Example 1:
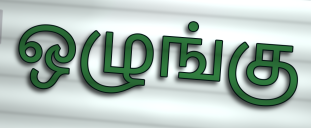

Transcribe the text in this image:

ஒழுங்கு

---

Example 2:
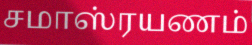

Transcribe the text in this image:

சமாஸ்ரயணம்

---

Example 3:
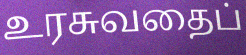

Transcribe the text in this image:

உரசுவதைப்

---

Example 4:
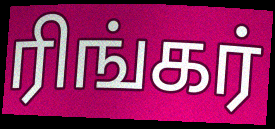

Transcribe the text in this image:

ரிங்கர்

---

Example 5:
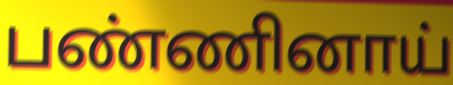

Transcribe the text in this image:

பண்ணினாய்